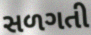
સળગતી